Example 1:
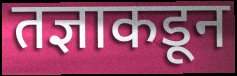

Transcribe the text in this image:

तज्ञाकडून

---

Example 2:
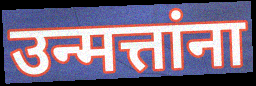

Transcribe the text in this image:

उन्मत्तांना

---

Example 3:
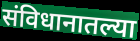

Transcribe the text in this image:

संविधानातल्या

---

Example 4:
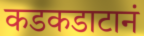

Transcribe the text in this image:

कडकडाटानं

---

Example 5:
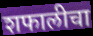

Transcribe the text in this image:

शफालीचा